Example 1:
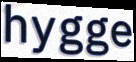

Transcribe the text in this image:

hygge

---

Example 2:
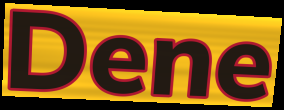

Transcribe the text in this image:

Dene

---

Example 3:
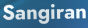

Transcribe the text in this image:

Sangiran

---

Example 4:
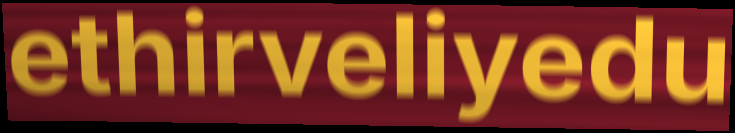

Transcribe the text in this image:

ethirveliyedu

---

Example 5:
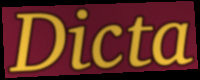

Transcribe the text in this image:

Dicta